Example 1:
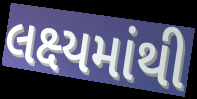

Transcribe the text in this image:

લક્ષ્યમાંથી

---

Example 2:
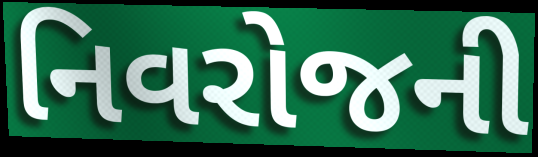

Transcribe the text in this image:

નિવરોજની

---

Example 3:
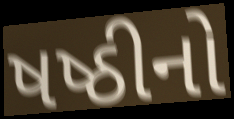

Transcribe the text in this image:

ષષ્ઠીનો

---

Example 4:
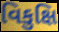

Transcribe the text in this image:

વિકુક્ષિ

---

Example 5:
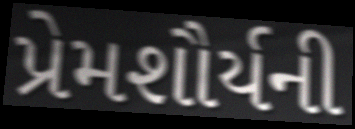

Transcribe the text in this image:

પ્રેમશૌર્યની